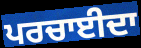
ਪਰਚਾਈਦਾ